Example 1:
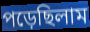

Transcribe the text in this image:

পড়েছিলাম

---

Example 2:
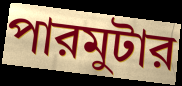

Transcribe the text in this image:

পারমুটার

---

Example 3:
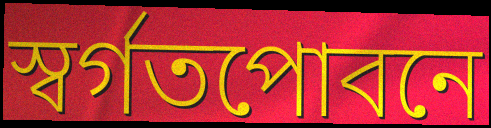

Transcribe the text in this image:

স্বর্গতপোবনে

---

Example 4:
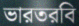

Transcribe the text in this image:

ভারতরবি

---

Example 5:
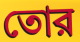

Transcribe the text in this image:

তোর